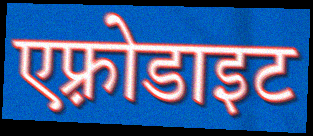
एफ़्रोडाइट